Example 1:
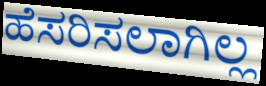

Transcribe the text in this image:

ಹೆಸರಿಸಲಾಗಿಲ್ಲ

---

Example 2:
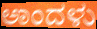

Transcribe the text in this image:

ಅಾಂದಳು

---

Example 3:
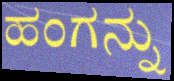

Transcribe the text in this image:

ಹಂಗನ್ನು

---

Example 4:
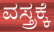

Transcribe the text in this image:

ವಸ್ತ್ರಕ್ಕೆ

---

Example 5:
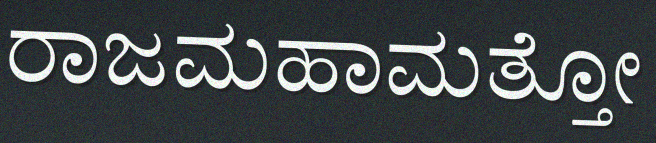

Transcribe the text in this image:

ರಾಜಮಹಾಮತ್ತೋ